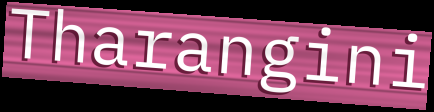
Tharangini